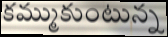
కమ్ముకుంటున్న